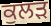
ਕੁਲੜ